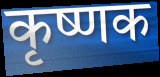
कृष्णक